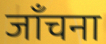
जाँचना